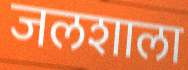
जलशाला